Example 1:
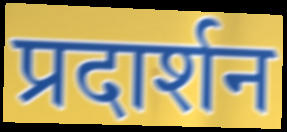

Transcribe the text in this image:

प्रदार्शन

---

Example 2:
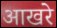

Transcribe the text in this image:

आखरे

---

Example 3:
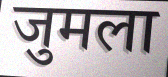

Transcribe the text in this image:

जुमला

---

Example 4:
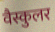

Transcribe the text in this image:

वैस्कुलर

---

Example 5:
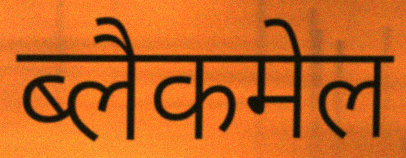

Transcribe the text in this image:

ब्लैकमेल